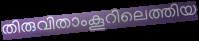
തിരുവിതാംകൂറിലെത്തിയ